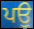
ਪਉ